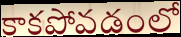
కాకపోవడంలో